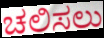
ಚಲಿಸಲು